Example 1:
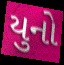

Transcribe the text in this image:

યુનો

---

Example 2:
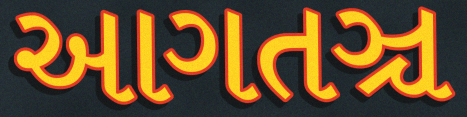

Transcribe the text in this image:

આગતઞ્ચ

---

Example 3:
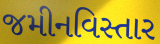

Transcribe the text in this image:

જમીનવિસ્તાર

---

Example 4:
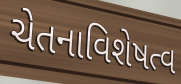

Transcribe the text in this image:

ચેતનાવિશેષત્વ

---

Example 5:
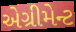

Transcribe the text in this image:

એગ્રીમેન્ટ